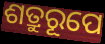
ଶତ୍ରୁରୂପେ